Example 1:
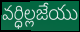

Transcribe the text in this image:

వర్ధిల్లజేయు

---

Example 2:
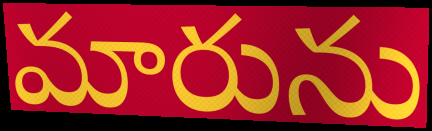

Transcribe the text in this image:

మారును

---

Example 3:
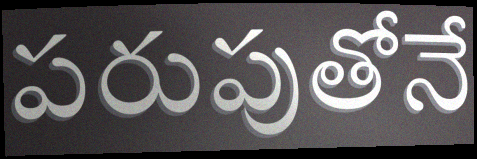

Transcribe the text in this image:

పరుపుతోనే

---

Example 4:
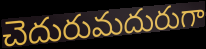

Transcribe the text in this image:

చెదురుమదురుగా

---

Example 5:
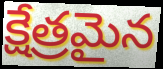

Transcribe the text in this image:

క్షేత్రమైన